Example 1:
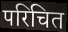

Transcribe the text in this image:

परिचित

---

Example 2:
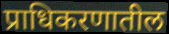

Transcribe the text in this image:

प्राधिकरणातील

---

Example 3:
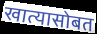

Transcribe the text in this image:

खात्यासोबत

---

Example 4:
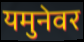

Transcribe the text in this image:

यमुनेवर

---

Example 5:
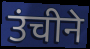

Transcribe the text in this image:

उंचीने